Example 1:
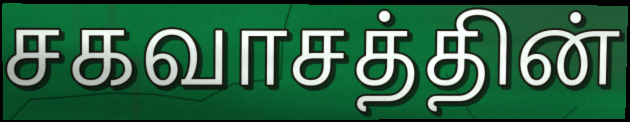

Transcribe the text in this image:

சகவாசத்தின்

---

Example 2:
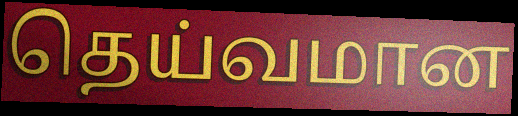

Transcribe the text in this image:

தெய்வமான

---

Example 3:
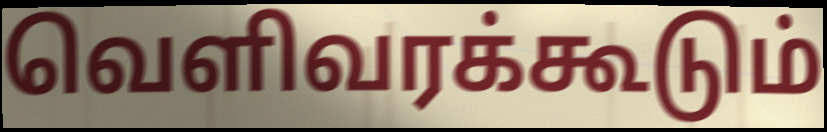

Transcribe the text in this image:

வெளிவரக்கூடும்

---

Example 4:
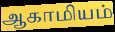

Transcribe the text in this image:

ஆகாமியம்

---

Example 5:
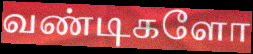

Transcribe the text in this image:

வண்டிகளோ